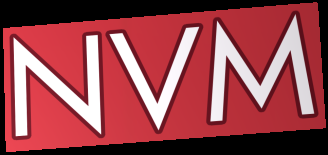
NVM